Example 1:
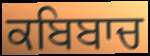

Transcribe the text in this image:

ਕਬਿਬਾਚ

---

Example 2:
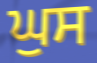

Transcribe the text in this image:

ਘੁਸ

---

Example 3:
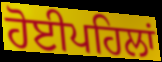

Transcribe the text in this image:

ਹੋਈਪਹਿਲਾਂ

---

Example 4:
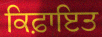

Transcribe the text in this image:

ਕਿਫ਼ਾਇਤ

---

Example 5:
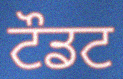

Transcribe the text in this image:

ਟੌਡਟ